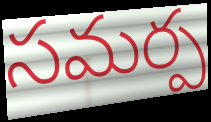
సమర్ప